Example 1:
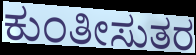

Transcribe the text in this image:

ಕುಂತೀಸುತರ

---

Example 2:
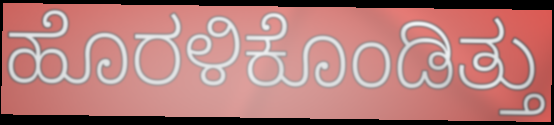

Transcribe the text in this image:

ಹೊರಳಿಕೊಂಡಿತ್ತು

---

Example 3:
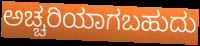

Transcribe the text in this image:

ಅಚ್ಚರಿಯಾಗಬಹುದು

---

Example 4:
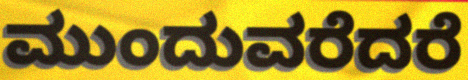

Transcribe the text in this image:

ಮುಂದುವರೆದರೆ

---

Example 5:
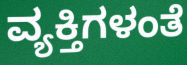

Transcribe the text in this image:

ವ್ಯಕ್ತಿಗಳಂತೆ